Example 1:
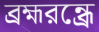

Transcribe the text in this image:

ব্রহ্মরন্ধ্রে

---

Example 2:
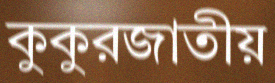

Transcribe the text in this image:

কুকুরজাতীয়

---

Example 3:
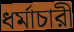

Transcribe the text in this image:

ধর্মাচারী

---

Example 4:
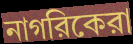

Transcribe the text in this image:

নাগরিকেরা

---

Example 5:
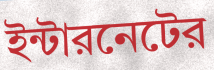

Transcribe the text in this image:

ইন্টারনেটের